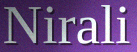
Nirali